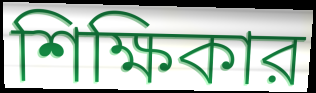
শিক্ষিকার